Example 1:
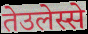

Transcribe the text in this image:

तेउलेस्से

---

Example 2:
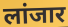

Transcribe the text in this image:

लांजार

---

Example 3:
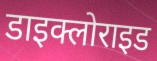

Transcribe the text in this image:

डाइक्लोराइड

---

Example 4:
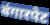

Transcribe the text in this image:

बंगारपेट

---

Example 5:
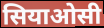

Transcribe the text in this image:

सियाओसी